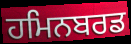
ਹਮਿਨਬਰਡ